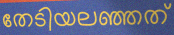
തേടിയലഞ്ഞത്